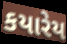
કયારેય